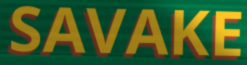
SAVAKE